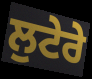
ਲੁਟੇਰੇ